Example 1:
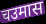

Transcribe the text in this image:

चउमास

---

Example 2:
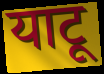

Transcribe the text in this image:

याटू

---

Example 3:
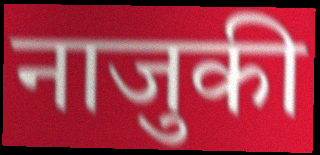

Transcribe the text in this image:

नाजुकी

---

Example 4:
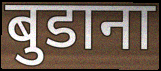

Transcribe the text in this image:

बुडाना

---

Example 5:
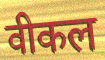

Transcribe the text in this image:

वीकल